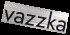
vazzka